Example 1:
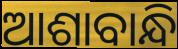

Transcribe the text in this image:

ଆଶାବାନ୍ଧି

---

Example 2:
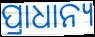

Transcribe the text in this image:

ପ୍ରାଧାନ୍ୟ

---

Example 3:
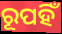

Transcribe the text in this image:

ରୂପହିଁ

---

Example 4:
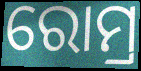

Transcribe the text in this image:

ରୋମ୍ର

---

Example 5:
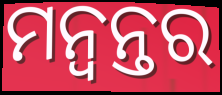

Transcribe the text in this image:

ମନ୍ୱନ୍ତର